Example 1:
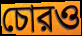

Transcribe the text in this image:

চোরও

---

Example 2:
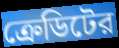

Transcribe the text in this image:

ক্রেডিটের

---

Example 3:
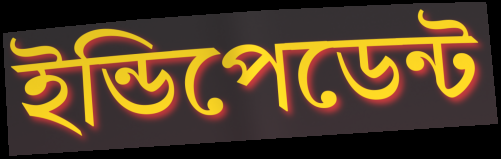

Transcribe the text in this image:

ইন্ডিপেডেন্ট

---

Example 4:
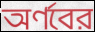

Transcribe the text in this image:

অর্ণবের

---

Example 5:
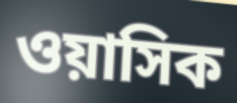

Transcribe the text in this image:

ওয়াসিক